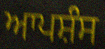
ਆਪਸ਼ੰਸ